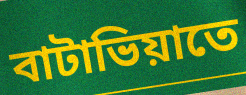
বাটাভিয়াতে